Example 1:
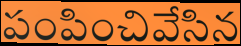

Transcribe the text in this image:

పంపించివేసిన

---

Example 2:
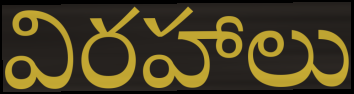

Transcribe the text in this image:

విరహాలు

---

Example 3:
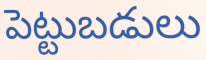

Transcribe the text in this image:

పెట్టుబడులు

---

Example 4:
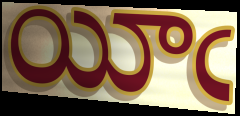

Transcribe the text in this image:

యీఁ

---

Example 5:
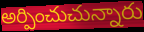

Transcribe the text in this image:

అర్పించుచున్నారు